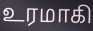
உரமாகி